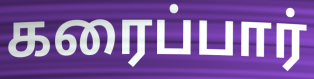
கரைப்பார்